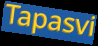
Tapasvi